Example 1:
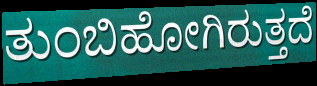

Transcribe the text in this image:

ತುಂಬಿಹೋಗಿರುತ್ತದೆ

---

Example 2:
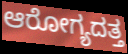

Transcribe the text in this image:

ಆರೋಗ್ಯದತ್ತ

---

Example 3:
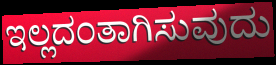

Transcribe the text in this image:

ಇಲ್ಲದಂತಾಗಿಸುವುದು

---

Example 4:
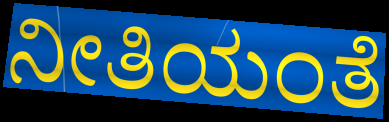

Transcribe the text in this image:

ನೀತಿಯಂತೆ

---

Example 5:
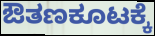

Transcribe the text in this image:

ಔತಣಕೂಟಕ್ಕೆ